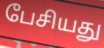
பேசியது